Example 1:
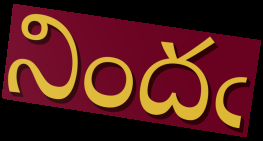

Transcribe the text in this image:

నిందఁ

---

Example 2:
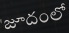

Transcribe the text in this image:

జూదంలో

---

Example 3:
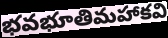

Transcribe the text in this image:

భవభూతిమహాకవి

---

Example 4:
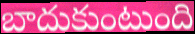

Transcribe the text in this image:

బాదుకుంటుంది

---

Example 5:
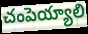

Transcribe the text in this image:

చంపెయ్యాలి